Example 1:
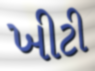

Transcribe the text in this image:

ખીટી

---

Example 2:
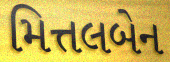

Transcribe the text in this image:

મિત્તલબેન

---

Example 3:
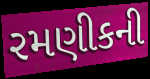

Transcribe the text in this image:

રમણીકની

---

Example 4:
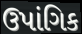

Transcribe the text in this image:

ઉપાંગિક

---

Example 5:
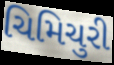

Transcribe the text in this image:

ચિમિચુરી